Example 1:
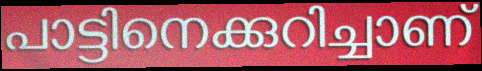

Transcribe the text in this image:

പാട്ടിനെക്കുറിച്ചാണ്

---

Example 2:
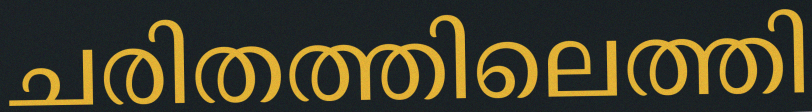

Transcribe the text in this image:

ചരിതത്തിലെത്തി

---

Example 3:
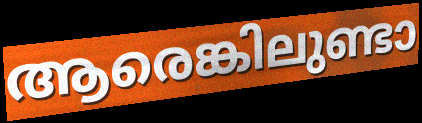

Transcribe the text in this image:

ആരെങ്കിലുണ്ടാ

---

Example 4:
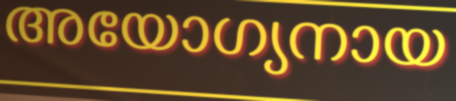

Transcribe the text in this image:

അയോഗ്യനായ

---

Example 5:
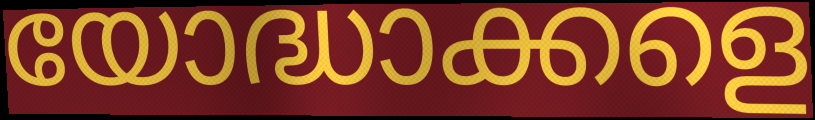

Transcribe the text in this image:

യോദ്ധാക്കളെ